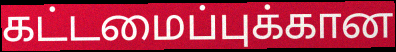
கட்டமைப்புக்கான